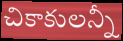
చికాకులన్నీ